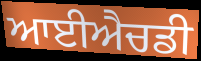
ਆਈਐਚਡੀ